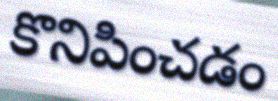
కొనిపించడం